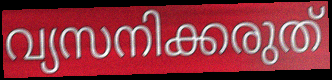
വ്യസനിക്കരുത്